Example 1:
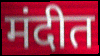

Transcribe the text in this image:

मंदीत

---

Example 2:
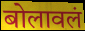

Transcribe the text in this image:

बोलावलं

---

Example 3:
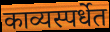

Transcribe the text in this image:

काव्यस्पर्धेत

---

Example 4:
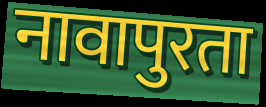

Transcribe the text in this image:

नावापुरता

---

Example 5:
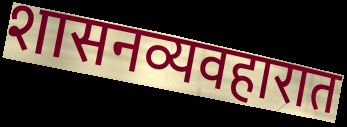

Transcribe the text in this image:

शासनव्यवहारात